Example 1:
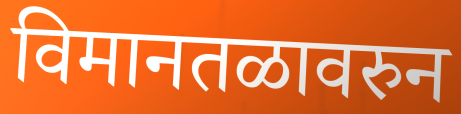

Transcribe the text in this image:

विमानतळावरुन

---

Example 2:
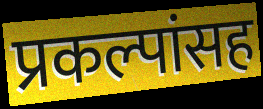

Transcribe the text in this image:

प्रकल्पांसह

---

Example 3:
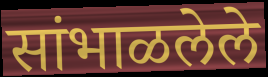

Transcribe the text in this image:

सांभाळलेले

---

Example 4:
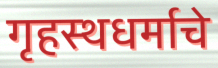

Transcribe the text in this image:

गृहस्थधर्माचे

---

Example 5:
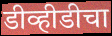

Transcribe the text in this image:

डीव्हीडीचा